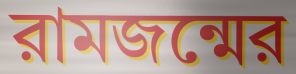
রামজন্মের